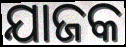
ଯାଜକ